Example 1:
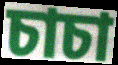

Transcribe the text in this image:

চাচা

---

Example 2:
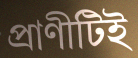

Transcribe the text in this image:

প্রাণীটিই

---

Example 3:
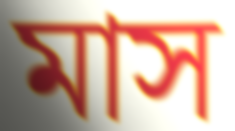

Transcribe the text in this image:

মাস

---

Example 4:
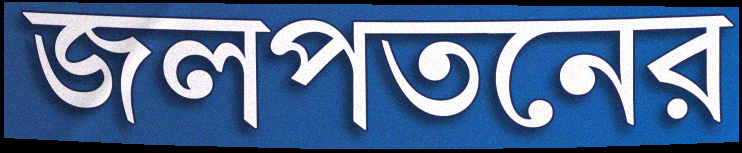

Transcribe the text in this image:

জলপতনের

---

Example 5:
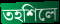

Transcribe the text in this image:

তহশিলে